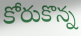
కోరుకొన్న